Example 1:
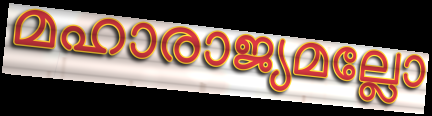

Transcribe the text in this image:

മഹാരാജ്യമല്ലോ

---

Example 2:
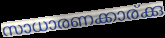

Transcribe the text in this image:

സാധാരണക്കാര്ക്കു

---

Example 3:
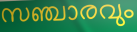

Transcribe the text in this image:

സഞ്ചാരവും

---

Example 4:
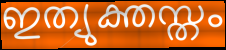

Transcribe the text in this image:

ഇത്യുക്തസ്തം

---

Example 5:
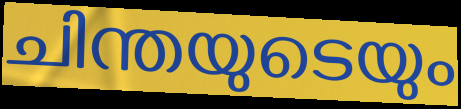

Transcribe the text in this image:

ചിന്തയുടെയും